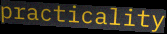
practicality